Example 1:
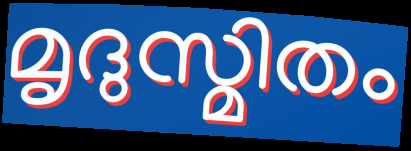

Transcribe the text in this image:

മൃദുസ്മിതം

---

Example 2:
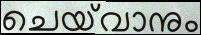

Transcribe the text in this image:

ചെയ്‌വാനും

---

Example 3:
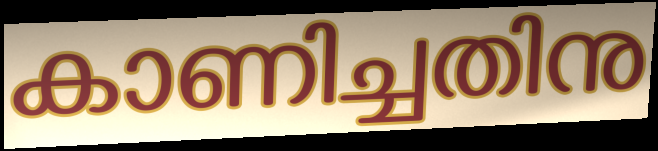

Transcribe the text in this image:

കാണിച്ചതിനു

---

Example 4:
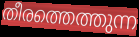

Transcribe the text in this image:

തീരത്തെത്തുന്ന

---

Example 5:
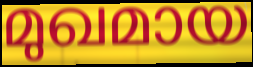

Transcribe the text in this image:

മുഖമായ